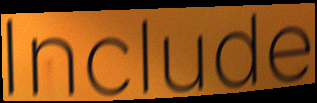
Include